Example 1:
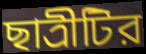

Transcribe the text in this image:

ছাত্রীটির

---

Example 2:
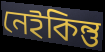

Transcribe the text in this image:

নেইকিন্তু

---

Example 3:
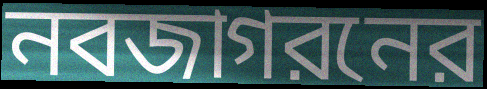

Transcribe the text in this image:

নবজাগরনের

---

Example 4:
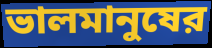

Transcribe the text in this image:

ভালমানুষের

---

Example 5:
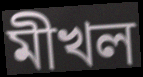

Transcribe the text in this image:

মীখল